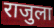
राजुला